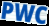
PWC